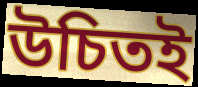
উচিতই